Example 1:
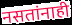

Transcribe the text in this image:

नसतांनाही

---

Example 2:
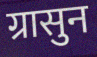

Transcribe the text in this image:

ग्रासुन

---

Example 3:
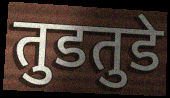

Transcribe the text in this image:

तुडतुडे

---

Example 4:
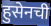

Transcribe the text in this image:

हुसेनची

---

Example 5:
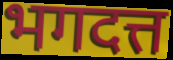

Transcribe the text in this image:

भगदत्त